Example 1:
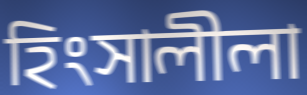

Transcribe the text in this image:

হিংসালীলা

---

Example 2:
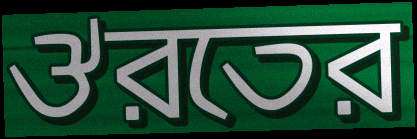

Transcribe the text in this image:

ঔরতের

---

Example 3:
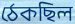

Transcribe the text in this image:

ঠেকছিল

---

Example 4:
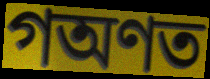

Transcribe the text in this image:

গঅণত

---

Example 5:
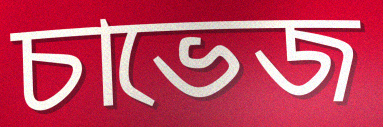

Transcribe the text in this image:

চাভেজ